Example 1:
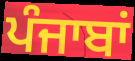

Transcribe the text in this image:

ਪੰਜਾਬਾਂ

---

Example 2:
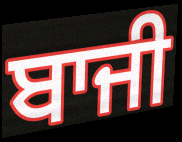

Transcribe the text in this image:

ਬਾਜੀ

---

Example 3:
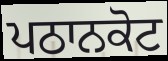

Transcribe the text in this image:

ਪਠਾਨਕੋਟ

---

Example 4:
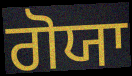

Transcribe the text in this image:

ਗੋਯਾ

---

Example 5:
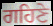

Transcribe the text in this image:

ਗਹਿਣੇ